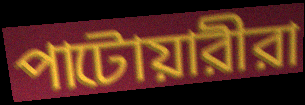
পাটোয়ারীরা